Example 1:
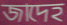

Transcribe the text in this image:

জাদেহ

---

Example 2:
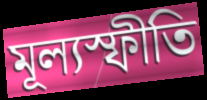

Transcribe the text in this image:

মূল্যস্ফীতি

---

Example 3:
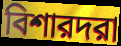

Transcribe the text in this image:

বিশারদরা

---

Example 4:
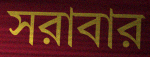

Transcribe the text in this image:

সরাবার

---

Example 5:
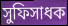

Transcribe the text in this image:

সুফিসাধক